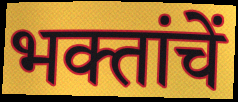
भक्तांचें